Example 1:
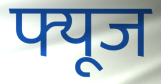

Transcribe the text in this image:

फ्यूज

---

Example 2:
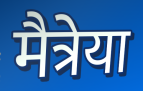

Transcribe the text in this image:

मैत्रेया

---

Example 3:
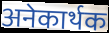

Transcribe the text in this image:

अनेकार्थक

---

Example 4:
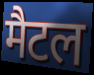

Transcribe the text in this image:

मैटल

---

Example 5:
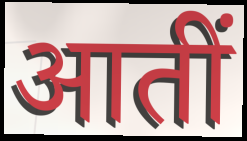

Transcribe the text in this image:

आतीं